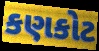
કણકોટ